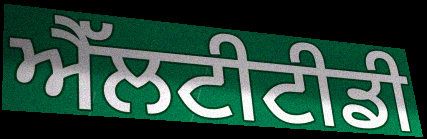
ਐੱਲਟੀਟੀਡੀ